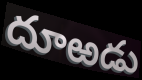
దూఱడు